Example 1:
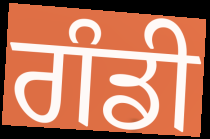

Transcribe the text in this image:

ਗੰਡੀ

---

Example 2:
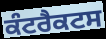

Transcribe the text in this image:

ਕੰਟਰੈਕਟਸ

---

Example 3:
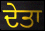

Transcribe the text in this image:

ਦੇਤਾ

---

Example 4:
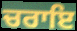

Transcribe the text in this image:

ਚਰਾਇ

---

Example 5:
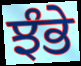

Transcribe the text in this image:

ਝੰਭੇ